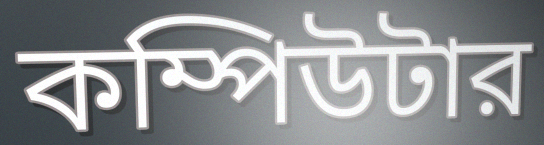
কম্পিউটার